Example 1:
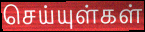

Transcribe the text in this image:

செய்யுள்கள்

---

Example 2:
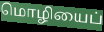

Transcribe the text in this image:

மொழியைப்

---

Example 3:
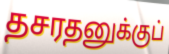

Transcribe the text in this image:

தசரதனுக்குப்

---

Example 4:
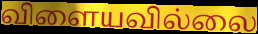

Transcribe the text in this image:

விளையவில்லை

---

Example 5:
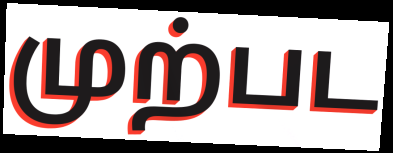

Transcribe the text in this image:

முற்பட